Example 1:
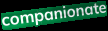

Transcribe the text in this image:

companionate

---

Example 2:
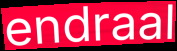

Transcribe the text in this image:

endraal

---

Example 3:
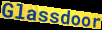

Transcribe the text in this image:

Glassdoor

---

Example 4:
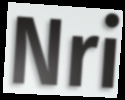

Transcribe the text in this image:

Nri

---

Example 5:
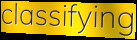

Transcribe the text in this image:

classifying